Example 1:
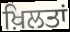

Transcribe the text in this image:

ਖ਼ਿਲਤਾਂ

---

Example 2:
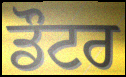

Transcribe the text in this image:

ਡੌਟਰ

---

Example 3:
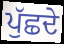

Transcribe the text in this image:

ਪੁੱਛਦੇ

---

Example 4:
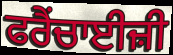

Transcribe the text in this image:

ਫਰੈਂਚਾਈਜ਼ੀ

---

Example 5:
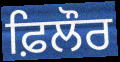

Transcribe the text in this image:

ਫ਼ਿਲੌਰ